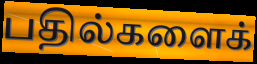
பதில்களைக்